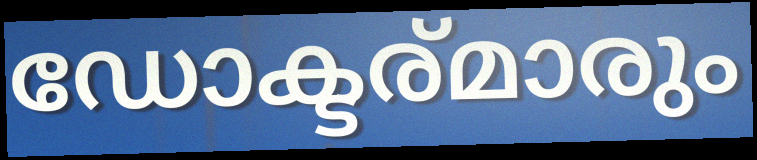
ഡോക്ടര്മാരും